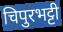
चिपुरभट्टी